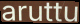
aruttu